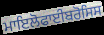
ਮਾਇਲੋਫਾਈਬਰੋਸਿਸ